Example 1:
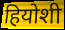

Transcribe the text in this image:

हियोशी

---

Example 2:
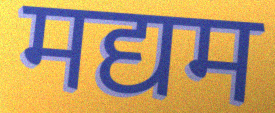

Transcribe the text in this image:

मद्यम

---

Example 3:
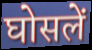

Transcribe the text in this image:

घोसलें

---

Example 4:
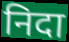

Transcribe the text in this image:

निदा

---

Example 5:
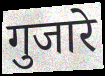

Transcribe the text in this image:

गुजारे